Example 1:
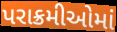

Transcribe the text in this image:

પરાક્રમીઓમાં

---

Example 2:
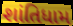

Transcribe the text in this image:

શાંતિધામ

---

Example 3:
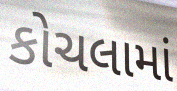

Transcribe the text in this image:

કોચલામાં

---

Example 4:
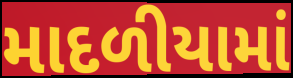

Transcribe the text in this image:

માદળીયામાં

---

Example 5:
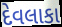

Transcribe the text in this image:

દેવલાકા